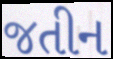
જતીન